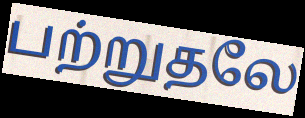
பற்றுதலே